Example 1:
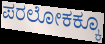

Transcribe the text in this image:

ಪರಲೋಕಕ್ಕೂ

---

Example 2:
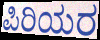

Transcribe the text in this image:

ಪಿರಿಯರ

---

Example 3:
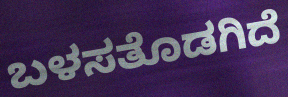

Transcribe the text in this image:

ಬಳಸತೊಡಗಿದೆ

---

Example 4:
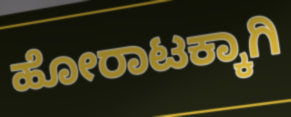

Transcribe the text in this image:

ಹೋರಾಟಕ್ಕಾಗಿ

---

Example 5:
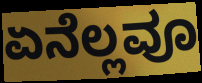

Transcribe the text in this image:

ಏನೆಲ್ಲವೂ